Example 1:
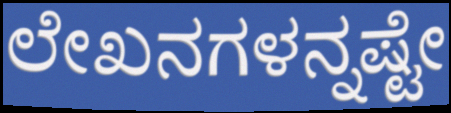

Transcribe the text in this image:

ಲೇಖನಗಳನ್ನಷ್ಟೇ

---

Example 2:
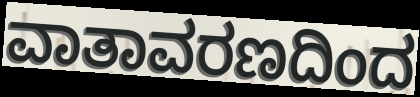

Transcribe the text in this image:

ವಾತಾವರಣದಿಂದ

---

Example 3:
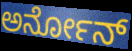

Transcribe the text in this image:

ಅರ್ನೋನ್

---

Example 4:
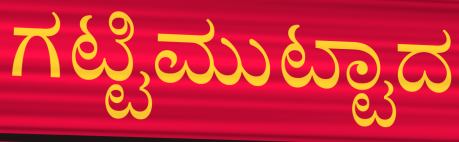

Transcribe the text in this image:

ಗಟ್ಟಿಮುಟ್ಟಾದ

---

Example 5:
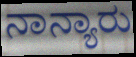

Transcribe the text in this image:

ನಾನ್ಯಾರು